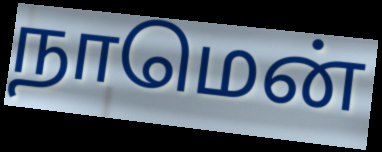
நாமென்